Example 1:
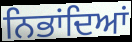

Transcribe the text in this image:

ਨਿਭਾਂਦਿਆਂ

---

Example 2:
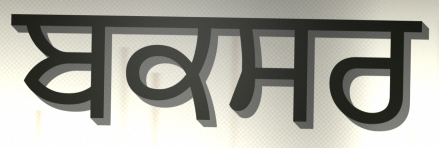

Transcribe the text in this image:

ਬਕਸਰ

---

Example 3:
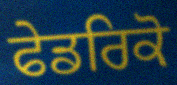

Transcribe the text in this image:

ਫੇਡਰਿਕੋ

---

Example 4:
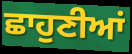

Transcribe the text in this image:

ਛਾਹੁਣੀਆਂ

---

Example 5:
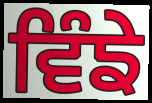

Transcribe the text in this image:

ਵਿੰਙੇ